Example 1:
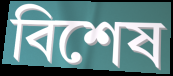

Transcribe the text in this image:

বিশেষ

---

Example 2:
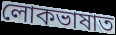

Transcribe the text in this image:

লোকভাষাত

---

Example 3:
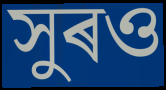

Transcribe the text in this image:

সুৰও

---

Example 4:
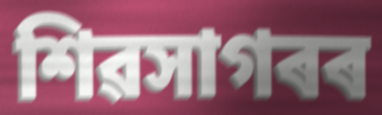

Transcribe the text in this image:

শিৱসাগৰৰ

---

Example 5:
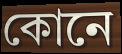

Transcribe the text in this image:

কোনে